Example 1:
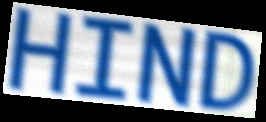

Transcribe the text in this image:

HIND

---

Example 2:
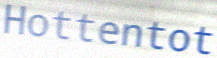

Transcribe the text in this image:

Hottentot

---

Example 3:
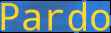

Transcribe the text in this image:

Pardo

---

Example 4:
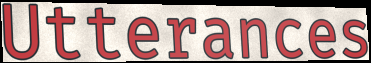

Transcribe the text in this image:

Utterances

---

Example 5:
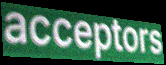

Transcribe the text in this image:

acceptors